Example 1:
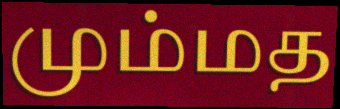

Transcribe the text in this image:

மும்மத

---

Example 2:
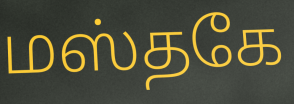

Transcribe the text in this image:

மஸ்தகே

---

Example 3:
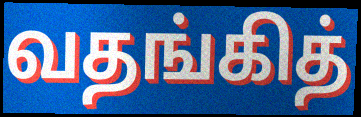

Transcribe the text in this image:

வதங்கித்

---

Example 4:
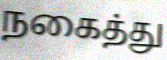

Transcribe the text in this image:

நகைத்து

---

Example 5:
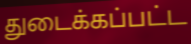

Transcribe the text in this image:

துடைக்கப்பட்ட